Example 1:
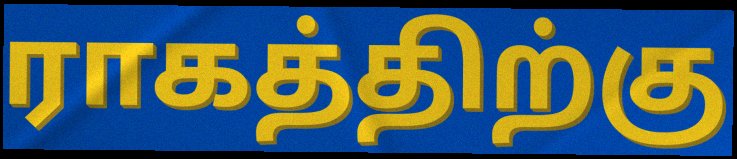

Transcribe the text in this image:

ராகத்திற்கு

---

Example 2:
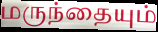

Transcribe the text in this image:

மருந்தையும்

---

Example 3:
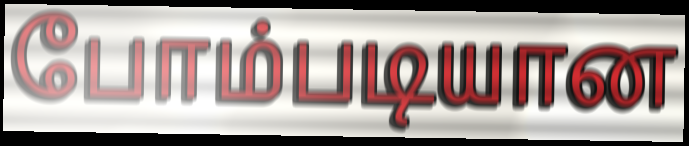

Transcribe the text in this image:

போம்படியான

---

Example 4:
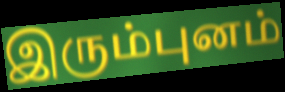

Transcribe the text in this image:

இரும்புனம்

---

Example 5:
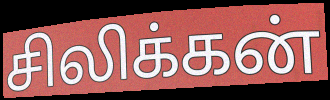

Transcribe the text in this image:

சிலிக்கன்